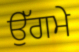
ਉੱਗਮੇ